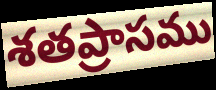
శతప్రాసము